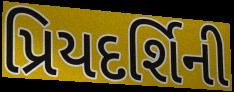
પ્રિયદર્શિની